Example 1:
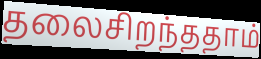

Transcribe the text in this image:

தலைசிறந்ததாம்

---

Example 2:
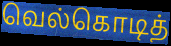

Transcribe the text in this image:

வெல்கொடித்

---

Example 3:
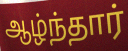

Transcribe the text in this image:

ஆழ்ந்தார்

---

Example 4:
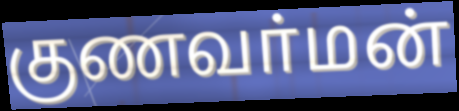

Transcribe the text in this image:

குணவர்மன்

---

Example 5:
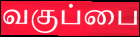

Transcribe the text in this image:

வகுப்பை